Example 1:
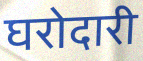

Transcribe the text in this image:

घरोदारी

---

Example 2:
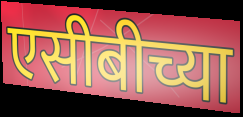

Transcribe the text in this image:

एसीबीच्या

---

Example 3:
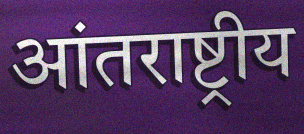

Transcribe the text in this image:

आंतराष्ट्रीय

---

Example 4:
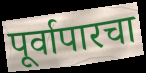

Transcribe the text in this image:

पूर्वापारचा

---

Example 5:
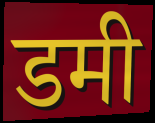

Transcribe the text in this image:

डमी